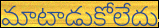
మాటాడుకోలేదు